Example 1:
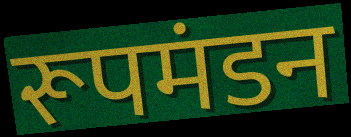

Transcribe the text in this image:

रूपमंडन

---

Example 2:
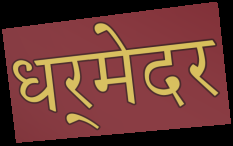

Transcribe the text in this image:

धर्मेदर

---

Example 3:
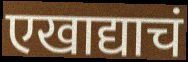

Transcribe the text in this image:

एखाद्याचं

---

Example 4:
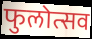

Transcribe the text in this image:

फुलोत्सव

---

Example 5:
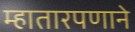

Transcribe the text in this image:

म्हातारपणाने